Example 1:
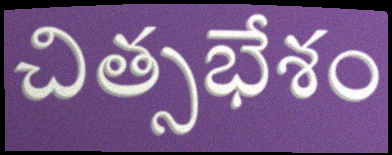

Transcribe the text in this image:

చిత్సభేశం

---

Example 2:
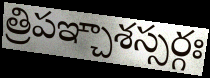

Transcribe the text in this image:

త్రిపఞ్చాశస్సర్గః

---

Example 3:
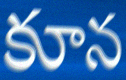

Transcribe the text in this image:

కూన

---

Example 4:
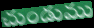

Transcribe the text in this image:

చుండుము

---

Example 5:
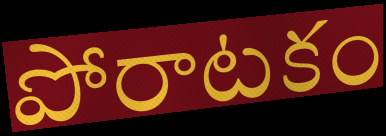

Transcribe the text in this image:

పోరాటకం